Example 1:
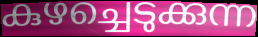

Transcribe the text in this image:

കുഴച്ചെടുക്കുന്ന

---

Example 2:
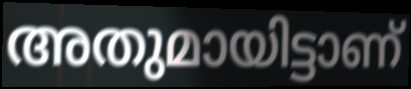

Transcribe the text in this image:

അതുമായിട്ടാണ്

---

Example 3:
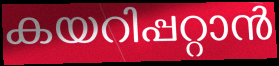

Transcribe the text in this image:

കയറിപ്പറ്റാൻ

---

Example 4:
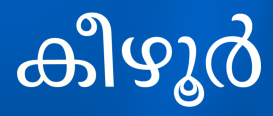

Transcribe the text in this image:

കീഴൂർ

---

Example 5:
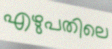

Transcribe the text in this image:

എഴുപതിലെ